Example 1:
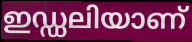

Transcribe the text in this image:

ഇഡ്ഡലിയാണ്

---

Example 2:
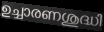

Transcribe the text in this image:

ഉച്ചാരണശുദ്ധി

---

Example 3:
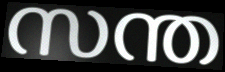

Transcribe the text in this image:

സന്ത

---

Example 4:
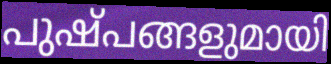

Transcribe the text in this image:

പുഷ്പങ്ങളുമായി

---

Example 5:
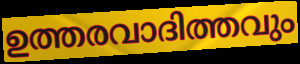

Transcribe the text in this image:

ഉത്തരവാദിത്തവും